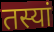
तस्यां